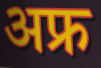
अफ्र